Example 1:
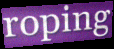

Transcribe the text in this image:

roping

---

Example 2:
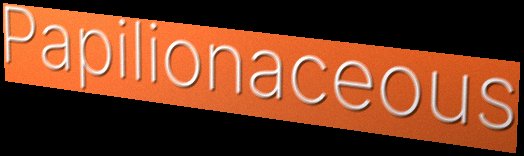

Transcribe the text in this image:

Papilionaceous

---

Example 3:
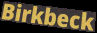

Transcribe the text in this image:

Birkbeck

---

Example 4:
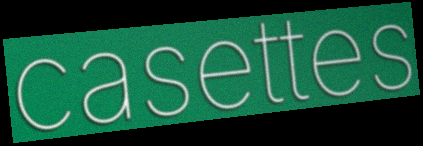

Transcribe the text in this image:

casettes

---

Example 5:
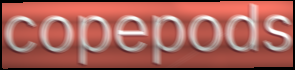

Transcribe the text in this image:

copepods